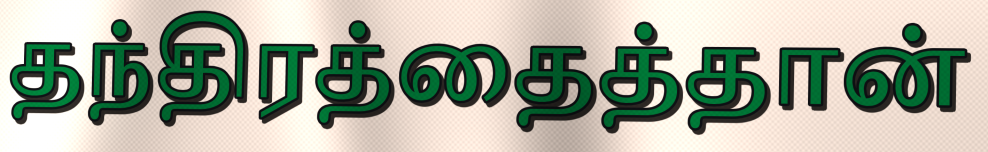
தந்திரத்தைத்தான்